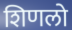
शिणलो